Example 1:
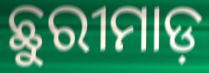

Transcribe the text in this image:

ଛୁରୀମାଡ଼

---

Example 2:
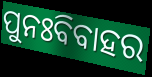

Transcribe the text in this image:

ପୁନଃବିବାହର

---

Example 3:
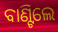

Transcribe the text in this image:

ବାଣ୍ଟିଲେ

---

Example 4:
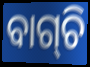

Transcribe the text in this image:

ବାଗ୍‌ଚି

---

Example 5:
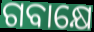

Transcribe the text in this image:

ଗବାକ୍ଷେ